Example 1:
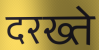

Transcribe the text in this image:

दरख्ते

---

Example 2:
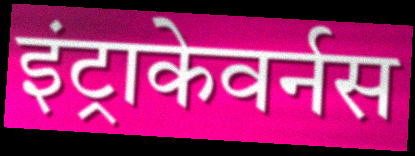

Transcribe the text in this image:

इंट्राकेवर्नस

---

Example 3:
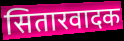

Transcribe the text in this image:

सितारवादक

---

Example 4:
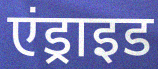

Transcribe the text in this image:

एंड्राइड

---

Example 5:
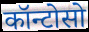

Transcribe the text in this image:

कॉन्टोसो